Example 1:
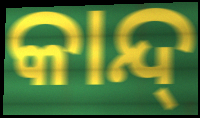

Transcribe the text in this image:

କାନ୍ଦ୍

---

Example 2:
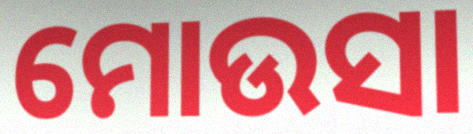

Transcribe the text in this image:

ମୋଉସା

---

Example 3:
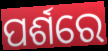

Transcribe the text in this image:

ପର୍ଶରେ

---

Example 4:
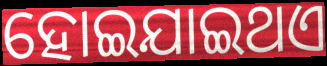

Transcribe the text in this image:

ହୋଇଯାଇଥଏ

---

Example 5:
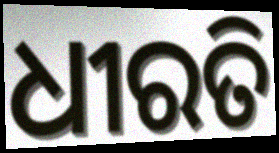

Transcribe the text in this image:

ଧୀରତି